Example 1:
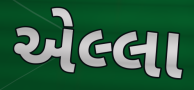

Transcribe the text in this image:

એલ્લા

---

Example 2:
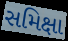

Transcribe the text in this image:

સમિક્ષા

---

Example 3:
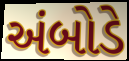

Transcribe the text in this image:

અંબોડે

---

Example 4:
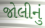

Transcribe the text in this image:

જોલીનું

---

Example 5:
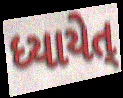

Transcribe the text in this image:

ધ્યાયેત્